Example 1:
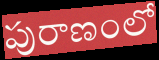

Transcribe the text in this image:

పురాణంలో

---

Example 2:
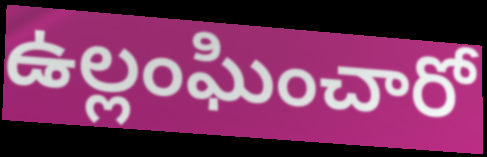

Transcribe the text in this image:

ఉల్లంఘించారో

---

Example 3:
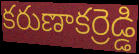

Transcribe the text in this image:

కరుణాకర్రెడ్డి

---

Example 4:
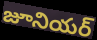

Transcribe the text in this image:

జూనియర్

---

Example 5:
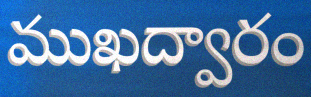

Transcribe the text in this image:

ముఖద్వారం